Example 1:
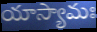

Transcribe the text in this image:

యాస్యామః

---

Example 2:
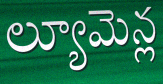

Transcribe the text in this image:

ల్యూమెన్ల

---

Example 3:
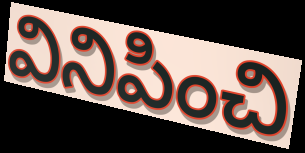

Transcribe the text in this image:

వినిపించి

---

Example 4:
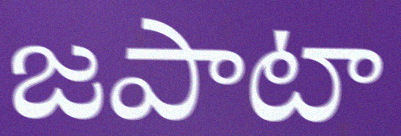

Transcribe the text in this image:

జపాటా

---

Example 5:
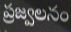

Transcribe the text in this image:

ప్రజ్వలనం